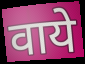
वाये